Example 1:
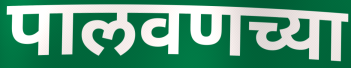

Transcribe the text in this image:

पालवणच्या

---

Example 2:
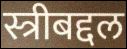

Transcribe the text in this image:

स्त्रीबद्दल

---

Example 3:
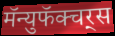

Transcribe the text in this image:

मॅन्युफॅक्चर्स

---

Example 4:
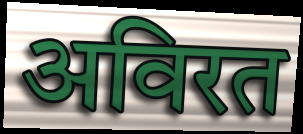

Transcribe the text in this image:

अविरत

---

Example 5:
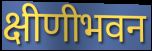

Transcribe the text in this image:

क्षीणीभवन